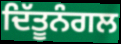
ਦਿੱਤੂਨੰਗਲ